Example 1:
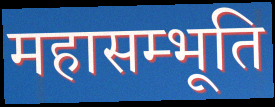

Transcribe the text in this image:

महासम्भूति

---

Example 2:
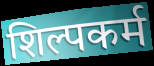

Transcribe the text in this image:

शिल्पकर्म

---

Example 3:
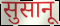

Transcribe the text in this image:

सुसानू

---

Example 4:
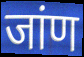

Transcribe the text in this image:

जांण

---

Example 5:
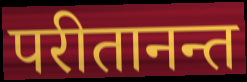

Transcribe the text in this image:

परीतानन्त